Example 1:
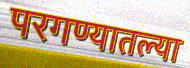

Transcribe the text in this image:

परगण्यातल्या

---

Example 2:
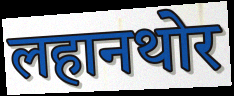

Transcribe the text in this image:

लहानथोर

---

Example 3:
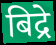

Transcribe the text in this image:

बिद्रे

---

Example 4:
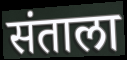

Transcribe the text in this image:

संताला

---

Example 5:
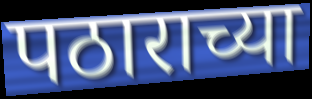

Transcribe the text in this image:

पठाराच्या